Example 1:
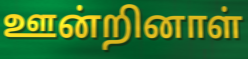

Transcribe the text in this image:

ஊன்றினாள்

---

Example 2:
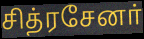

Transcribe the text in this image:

சித்ரசேனர்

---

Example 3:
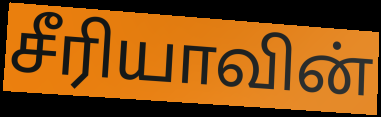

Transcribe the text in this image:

சீரியாவின்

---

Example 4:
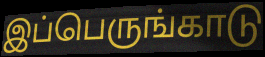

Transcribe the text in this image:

இப்பெருங்காடு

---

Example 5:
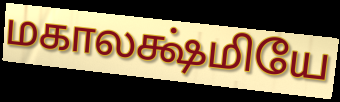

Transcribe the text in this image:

மகாலக்ஷ்மியே